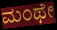
ಮಂಥೇ